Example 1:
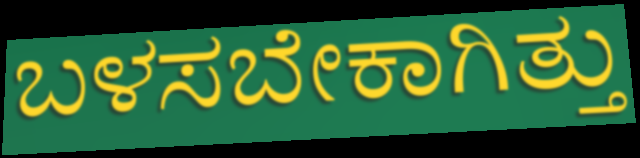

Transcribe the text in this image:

ಬಳಸಬೇಕಾಗಿತ್ತು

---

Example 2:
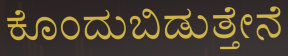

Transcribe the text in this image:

ಕೊಂದುಬಿಡುತ್ತೇನೆ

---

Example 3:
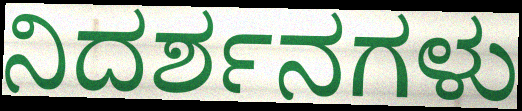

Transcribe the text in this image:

ನಿದರ್ಶನಗಳು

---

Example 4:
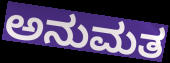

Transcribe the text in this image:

ಅನುಮತ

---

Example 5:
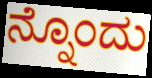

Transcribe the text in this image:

ನ್ನೊಂದು